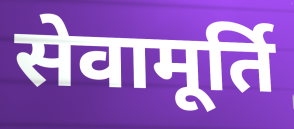
सेवामूर्ति